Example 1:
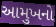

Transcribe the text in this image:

આમુખનો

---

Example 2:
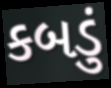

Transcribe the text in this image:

કબડું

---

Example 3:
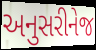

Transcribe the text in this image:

અનુસરીનેજ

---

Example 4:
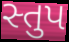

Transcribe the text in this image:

સ્તુપ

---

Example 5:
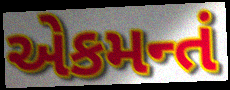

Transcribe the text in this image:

એકમન્તં